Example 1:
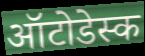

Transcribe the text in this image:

ऑटोडेस्क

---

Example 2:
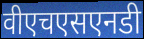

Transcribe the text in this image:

वीएचएसएनडी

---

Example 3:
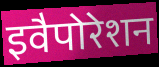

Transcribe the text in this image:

इवैपोरेशन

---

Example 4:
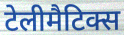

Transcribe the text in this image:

टेलीमैटिक्स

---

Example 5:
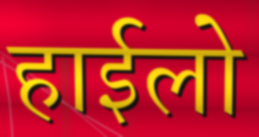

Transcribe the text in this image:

हाईलो